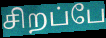
சிறப்பே